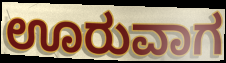
ಊರುವಾಗ